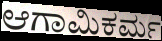
ಆಗಾಮಿಕರ್ಮ